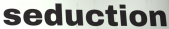
seduction